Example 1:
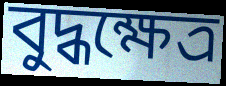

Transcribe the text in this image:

বুদ্ধক্ষেত্ৰ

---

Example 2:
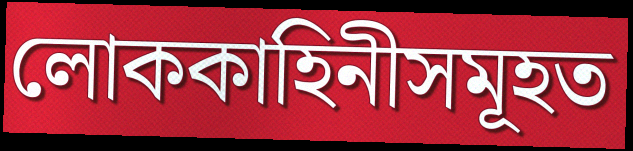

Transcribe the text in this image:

লোককাহিনীসমূহত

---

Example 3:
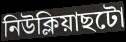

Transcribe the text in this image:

নিউক্লিয়াছটো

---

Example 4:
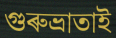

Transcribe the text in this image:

গুৰুভ্ৰাতাই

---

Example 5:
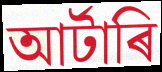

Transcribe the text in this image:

আৰ্টাৰি